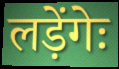
लड़ेंगेः